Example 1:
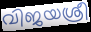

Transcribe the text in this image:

വിജയശ്രീ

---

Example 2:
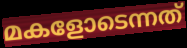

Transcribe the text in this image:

മകളോടെന്നത്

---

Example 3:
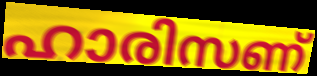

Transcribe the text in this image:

ഹാരിസണ്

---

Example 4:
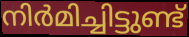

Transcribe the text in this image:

നിർമിച്ചിട്ടുണ്ട്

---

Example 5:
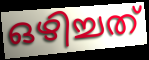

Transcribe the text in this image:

ഒഴിച്ചത്